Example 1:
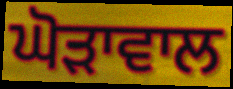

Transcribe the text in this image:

ਘੋੜਾਵਾਲ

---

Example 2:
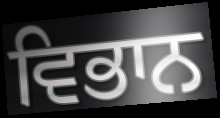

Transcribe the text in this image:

ਵਿਭਾਨ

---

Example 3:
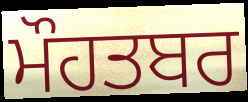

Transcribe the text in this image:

ਮੌਹਤਬਰ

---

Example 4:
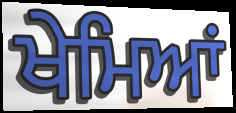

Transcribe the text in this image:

ਖੇਮਿਆਂ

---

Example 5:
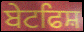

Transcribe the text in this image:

ਬੇਟਫਿਸ਼